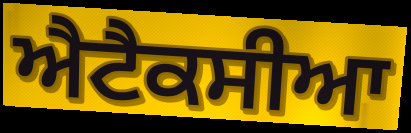
ਐਟੈਕਸੀਆ